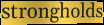
strongholds